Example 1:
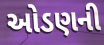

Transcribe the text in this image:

ઓડણની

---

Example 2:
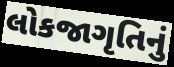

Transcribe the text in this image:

લોકજાગૃતિનું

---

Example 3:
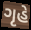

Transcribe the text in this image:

ગૃહે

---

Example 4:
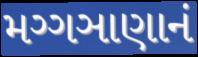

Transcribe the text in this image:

મગ્ગઞાણાનં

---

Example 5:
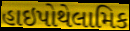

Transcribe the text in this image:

હાઇપોથેલામિક